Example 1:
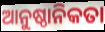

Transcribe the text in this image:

ଆନୁଷ୍ଠାନିକତା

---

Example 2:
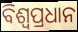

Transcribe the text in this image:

ବିଶ୍ୱପ୍ରଧାନ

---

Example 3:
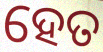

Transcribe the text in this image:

ହେତ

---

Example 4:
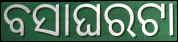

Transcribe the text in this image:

ବସାଘରଟା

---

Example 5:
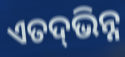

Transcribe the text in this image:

ଏତଦ୍‍ଭିନ୍ନ